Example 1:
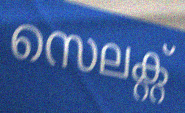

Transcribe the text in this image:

സെലക്റ്റ്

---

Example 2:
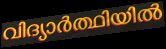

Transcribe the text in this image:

വിദ്യാർത്ഥിയിൽ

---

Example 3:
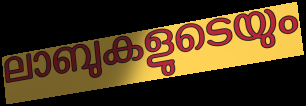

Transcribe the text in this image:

ലാബുകളുടെയും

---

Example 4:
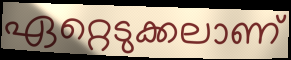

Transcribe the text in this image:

ഏറ്റെടുക്കലാണ്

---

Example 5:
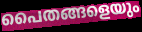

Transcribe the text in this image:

പൈതങ്ങളെയും